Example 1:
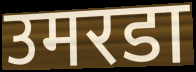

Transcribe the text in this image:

उमरडा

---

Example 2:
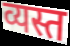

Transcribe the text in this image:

व्यस्त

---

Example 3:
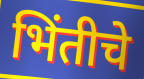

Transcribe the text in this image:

भिंतीचे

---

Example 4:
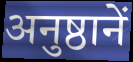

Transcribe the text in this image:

अनुष्ठानें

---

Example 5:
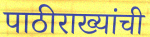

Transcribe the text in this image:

पाठीराख्यांची